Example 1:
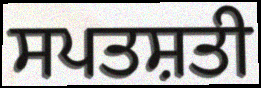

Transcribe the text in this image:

ਸਪਤਸ਼ਤੀ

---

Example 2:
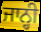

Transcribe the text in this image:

ਜਾਨ੍ਹੀ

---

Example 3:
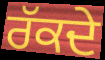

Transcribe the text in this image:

ਰੱਕਦੇ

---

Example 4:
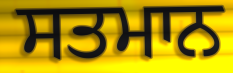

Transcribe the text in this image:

ਸਤਮਾਨ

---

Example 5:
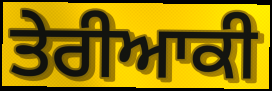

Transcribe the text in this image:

ਤੇਰੀਆਕੀ